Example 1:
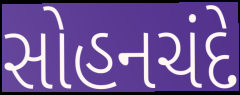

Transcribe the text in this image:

સોહનચંદે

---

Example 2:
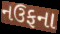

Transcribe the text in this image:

નઉફના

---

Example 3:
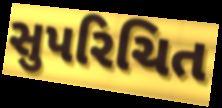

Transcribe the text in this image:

સુપરિચિત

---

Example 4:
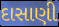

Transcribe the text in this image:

દાસાણી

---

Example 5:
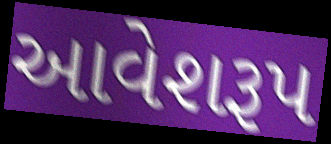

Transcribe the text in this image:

આવેશરૂપ